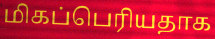
மிகப்பெரியதாக